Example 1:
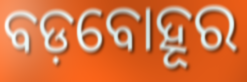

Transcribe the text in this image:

ବଡ଼ବୋହୂର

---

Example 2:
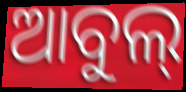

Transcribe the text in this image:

ଆବୁଲ୍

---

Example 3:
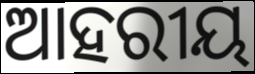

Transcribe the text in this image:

ଆହରୀୟ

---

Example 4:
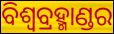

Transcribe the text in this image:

ବିଶ୍ୱବ୍ରହ୍ମାଣ୍ଡର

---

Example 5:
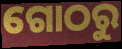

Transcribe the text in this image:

ଗୋଠରୁ